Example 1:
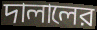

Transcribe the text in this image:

দালালের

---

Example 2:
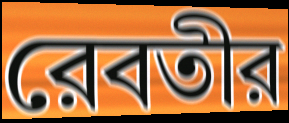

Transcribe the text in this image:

রেবতীর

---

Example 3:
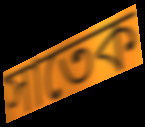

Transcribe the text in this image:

সাতেক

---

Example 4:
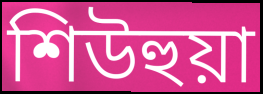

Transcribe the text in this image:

শিউহুয়া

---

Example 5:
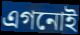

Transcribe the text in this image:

এগনোই